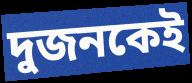
দুজনকেই